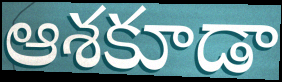
ఆశకూడా